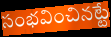
సంభవించినట్టే